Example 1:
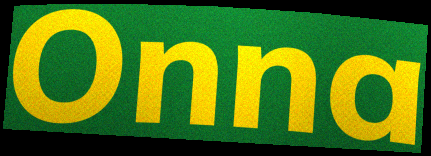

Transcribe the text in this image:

Onna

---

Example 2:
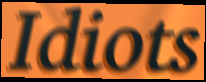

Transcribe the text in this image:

Idiots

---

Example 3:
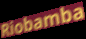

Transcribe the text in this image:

Riobamba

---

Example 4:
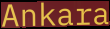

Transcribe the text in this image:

Ankara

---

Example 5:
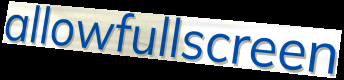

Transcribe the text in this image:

allowfullscreen